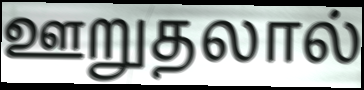
ஊறுதலால்